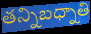
తన్నిబధ్నాతి